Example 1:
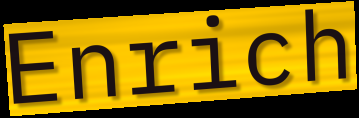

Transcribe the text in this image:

Enrich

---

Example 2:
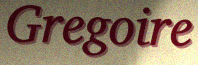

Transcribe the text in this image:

Gregoire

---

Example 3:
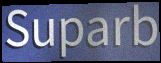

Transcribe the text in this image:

Suparb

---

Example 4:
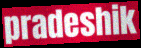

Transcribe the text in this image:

pradeshik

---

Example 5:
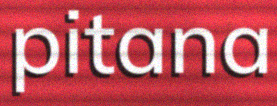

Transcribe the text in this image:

pitana